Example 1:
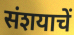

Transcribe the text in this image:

संशयाचें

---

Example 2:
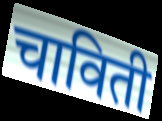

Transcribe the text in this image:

चाविती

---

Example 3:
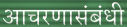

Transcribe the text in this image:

आचरणासंबंधी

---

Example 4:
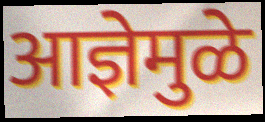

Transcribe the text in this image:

आज्ञेमुळे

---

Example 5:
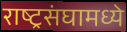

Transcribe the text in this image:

राष्ट्रसंघामध्ये